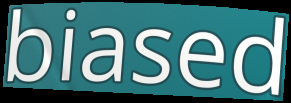
biased